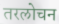
तरलोचन